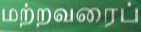
மற்றவரைப்